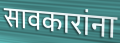
सावकारांना